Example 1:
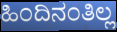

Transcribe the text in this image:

ಹಿಂದಿನಂತಿಲ್ಲ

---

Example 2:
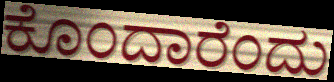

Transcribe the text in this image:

ಕೊಂದಾರೆಂದು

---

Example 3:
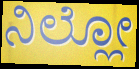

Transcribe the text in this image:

ನಿಲ್ಲೋ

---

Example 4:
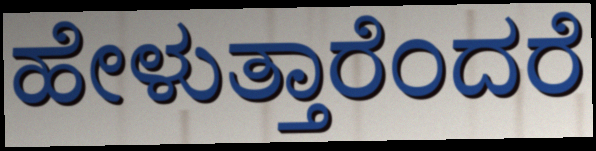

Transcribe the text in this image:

ಹೇಳುತ್ತಾರೆಂದರೆ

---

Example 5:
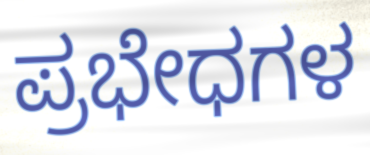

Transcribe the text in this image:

ಪ್ರಭೇಧಗಳ